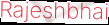
Rajeshbhai